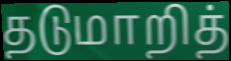
தடுமாறித்